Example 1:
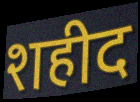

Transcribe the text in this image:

शहीद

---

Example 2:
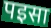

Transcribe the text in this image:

पइसा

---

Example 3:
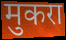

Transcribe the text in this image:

मुकरा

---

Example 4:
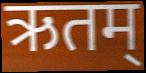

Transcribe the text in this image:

ऋतम्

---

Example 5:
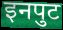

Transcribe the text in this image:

इनपुट